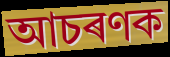
আচৰণক